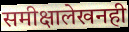
समीक्षालेखनही